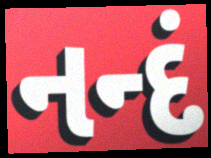
નન્દં